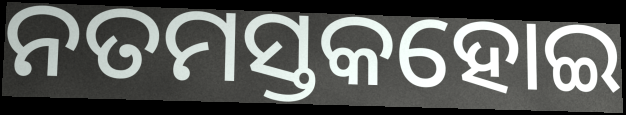
ନତମସ୍ତକହୋଇ